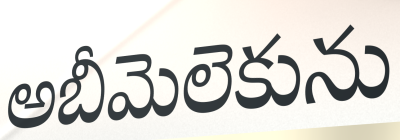
అబీమెలెకును